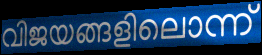
വിജയങ്ങളിലൊന്ന്